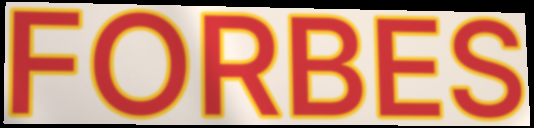
FORBES